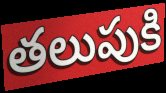
తలుపుకి